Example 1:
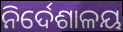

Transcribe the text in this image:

ନିର୍ଦେଶାଳୟ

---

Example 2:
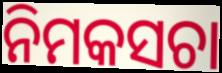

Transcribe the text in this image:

ନିମକସଚା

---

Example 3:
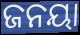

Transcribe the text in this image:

ଜନୟା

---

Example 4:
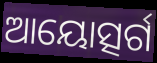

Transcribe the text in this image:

ଆୟୋତ୍ସର୍ଗ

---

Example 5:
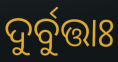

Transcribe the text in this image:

ଦୁର୍ବୁତ୍ତାଃ